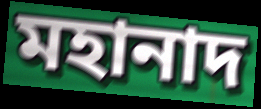
মহানাদ